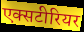
एक्सटीरियर